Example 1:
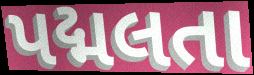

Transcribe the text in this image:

પદ્મલતા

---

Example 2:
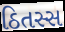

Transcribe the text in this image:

ઠિતસ્સ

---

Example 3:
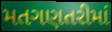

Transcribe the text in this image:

મતગણતરીમાં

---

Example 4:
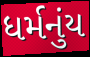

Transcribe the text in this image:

ધર્મનુંય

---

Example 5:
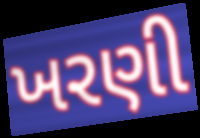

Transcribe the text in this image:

ખરણી